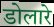
डोलारे